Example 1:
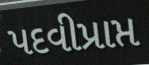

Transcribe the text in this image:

પદવીપ્રાપ્ત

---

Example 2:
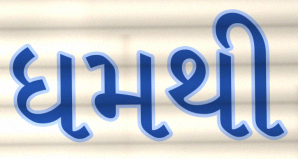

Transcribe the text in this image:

ધમથી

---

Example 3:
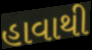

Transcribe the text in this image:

હાવાથી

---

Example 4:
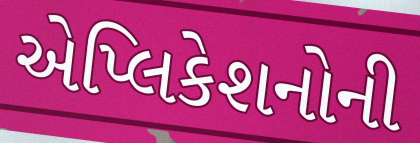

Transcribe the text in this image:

એપ્લિકેશનોની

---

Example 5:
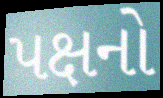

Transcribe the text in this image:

પક્ષનો